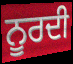
ਨੂਰਦੀ